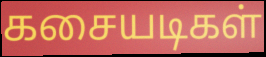
கசையடிகள்